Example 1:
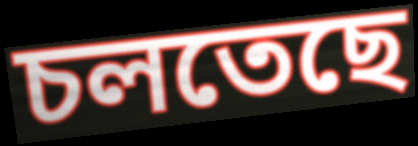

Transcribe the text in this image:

চলতেছে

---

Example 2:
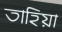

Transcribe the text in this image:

তাহিয়া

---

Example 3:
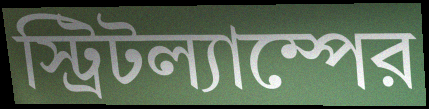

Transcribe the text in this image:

স্ট্রিটল্যাম্পের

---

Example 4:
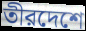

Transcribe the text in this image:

তীরদেশে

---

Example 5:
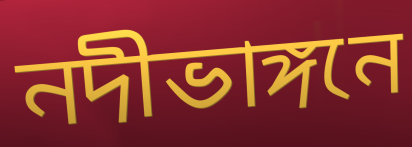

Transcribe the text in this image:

নদীভাঙ্গনে